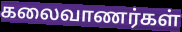
கலைவாணர்கள்